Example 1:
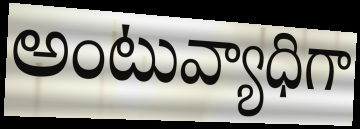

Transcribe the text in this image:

అంటువ్యాధిగా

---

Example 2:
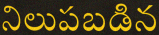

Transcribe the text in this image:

నిలుపబడిన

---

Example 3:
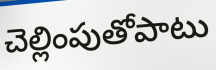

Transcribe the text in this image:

చెల్లింపుతోపాటు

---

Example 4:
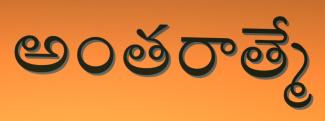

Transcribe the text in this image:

అంతరాత్మే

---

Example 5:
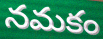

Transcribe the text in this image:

నమకం